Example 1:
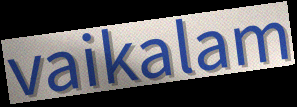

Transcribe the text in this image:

vaikalam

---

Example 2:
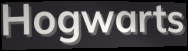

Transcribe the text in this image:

Hogwarts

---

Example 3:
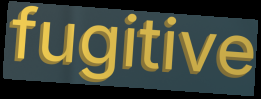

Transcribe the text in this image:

fugitive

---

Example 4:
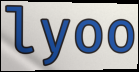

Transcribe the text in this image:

lyoo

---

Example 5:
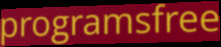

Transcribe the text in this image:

programsfree